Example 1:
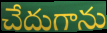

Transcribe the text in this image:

చేదుగాను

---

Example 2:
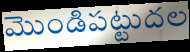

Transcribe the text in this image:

మొండిపట్టుదల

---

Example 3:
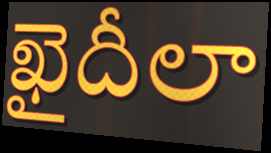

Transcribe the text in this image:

ఖైదీలా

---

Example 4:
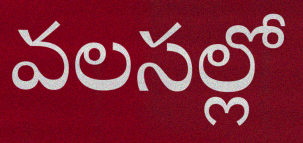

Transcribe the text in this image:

వలసల్లో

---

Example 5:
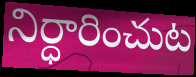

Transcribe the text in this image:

నిర్ధారించుట